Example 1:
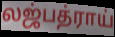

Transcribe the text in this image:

லஜ்பத்ராய்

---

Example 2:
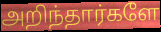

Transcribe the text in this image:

அறிந்தார்களே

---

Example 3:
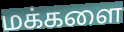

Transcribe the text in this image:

மக்களை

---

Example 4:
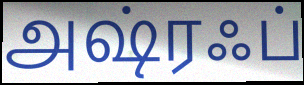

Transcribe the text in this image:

அஷ்ரஃப்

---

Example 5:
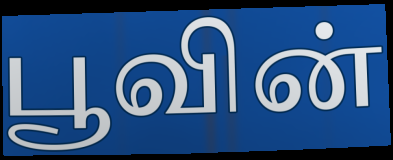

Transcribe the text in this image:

பூவின்